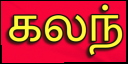
கலந்